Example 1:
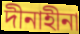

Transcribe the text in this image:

দীনাহীনা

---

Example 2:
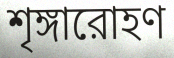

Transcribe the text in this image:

শৃঙ্গারোহণ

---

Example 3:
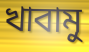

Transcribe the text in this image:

খাবামু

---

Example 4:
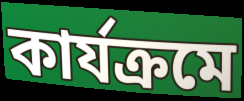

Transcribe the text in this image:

কার্যক্রমে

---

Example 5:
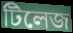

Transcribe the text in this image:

টিলেজ